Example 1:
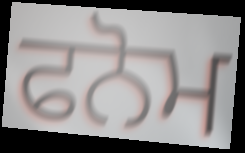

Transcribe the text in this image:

ਫਨੋਮ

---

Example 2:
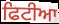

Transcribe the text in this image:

ਫਿਟੀਆ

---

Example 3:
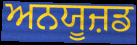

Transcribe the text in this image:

ਅਨਯੂਜ਼ਡ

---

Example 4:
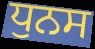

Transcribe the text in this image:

ਧੁਨਸ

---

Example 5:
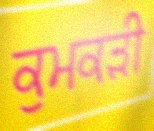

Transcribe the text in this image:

ਕੁਮਕੜੀ